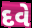
દવે